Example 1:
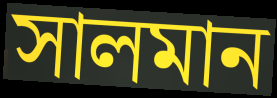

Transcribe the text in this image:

সালমান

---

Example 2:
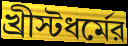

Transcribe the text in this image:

খ্রীস্টধর্মের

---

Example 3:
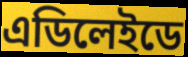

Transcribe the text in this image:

এডিলেইডে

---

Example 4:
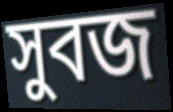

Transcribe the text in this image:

সুবজ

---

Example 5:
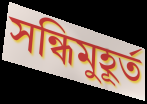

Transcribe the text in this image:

সন্ধিমুহূর্ত